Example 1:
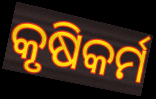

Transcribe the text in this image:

କୃଷିକର୍ମ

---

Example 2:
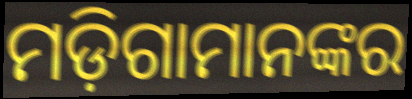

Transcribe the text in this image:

ମଡ଼ିଗାମାନଙ୍କର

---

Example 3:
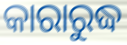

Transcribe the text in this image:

କାରାରୁଦ୍ଧ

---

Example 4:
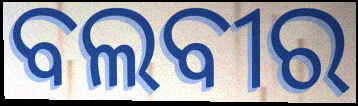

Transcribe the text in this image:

ବଲବୀର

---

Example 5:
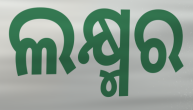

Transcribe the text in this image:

ଲକ୍ଷ୍ମର